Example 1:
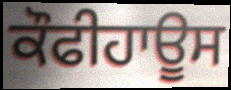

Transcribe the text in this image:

ਕੌਫੀਹਾਊਸ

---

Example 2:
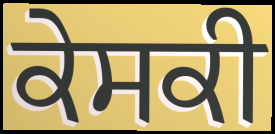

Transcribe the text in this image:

ਕੇਸਕੀ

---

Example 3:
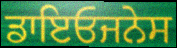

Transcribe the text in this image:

ਡਾਇਓਜਨੇਸ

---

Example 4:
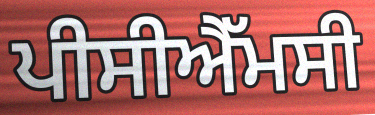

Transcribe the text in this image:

ਪੀਸੀਐੱਮਸੀ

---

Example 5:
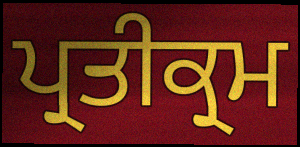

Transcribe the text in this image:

ਪ੍ਰਤੀਕ੍ਰਮ